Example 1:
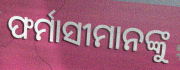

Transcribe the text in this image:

ଫର୍ମାସୀମାନଙ୍କୁ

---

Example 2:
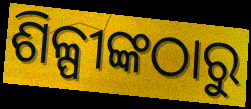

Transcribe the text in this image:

ଶିଳ୍ପୀଙ୍କଠାରୁ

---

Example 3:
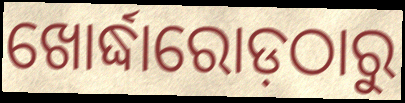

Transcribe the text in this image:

ଖୋର୍ଦ୍ଧାରୋଡ଼ଠାରୁ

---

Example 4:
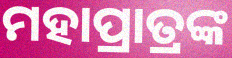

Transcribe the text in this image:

ମହାପ୍ରାତ୍ରଙ୍କ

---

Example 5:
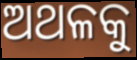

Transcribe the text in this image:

ଅଥଳକୁ